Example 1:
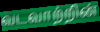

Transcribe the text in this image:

வடவாற்றின்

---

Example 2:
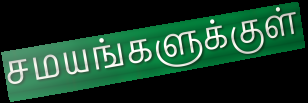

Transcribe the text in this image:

சமயங்களுக்குள்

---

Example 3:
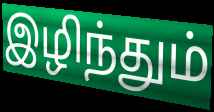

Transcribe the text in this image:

இழிந்தும்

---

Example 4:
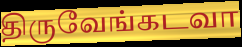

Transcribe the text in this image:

திருவேங்கடவா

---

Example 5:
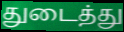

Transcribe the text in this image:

துடைத்து